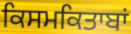
ਕਿਸਮਕਿਤਾਬਾਂ